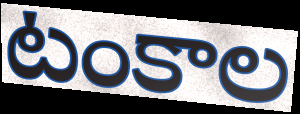
టంకాల